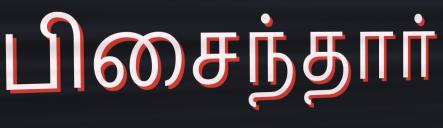
பிசைந்தார்